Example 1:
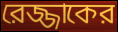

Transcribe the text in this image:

রেজ্জাকের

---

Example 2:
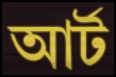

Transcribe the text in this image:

আর্ট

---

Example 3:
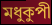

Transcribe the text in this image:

মধুকুপী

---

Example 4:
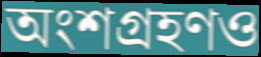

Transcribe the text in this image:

অংশগ্রহণও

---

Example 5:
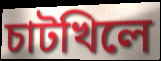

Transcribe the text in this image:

চাটখিলে